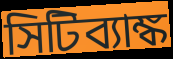
সিটিব্যাঙ্ক